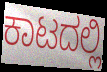
ಕಾಟದಲ್ಲಿ